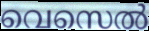
വെസെൽ